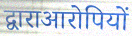
द्वाराआरोपियों